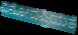
ವಿನೋದಪ್ರಿಯತೆ